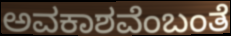
ಅವಕಾಶವೆಂಬಂತೆ